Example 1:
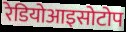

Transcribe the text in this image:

रेडियोआइसोटोप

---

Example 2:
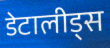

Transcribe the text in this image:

डेटालीड्स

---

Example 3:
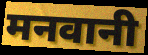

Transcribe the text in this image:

मनवानी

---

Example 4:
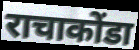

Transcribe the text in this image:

राचाकोंडा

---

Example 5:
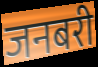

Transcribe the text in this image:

जनबरी